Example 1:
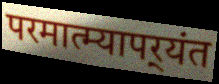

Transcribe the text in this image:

परमात्म्यापर्यंत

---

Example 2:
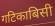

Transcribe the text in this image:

गटिकाबिसी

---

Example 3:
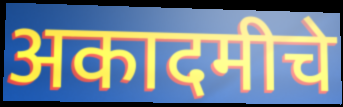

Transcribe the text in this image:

अकादमीचे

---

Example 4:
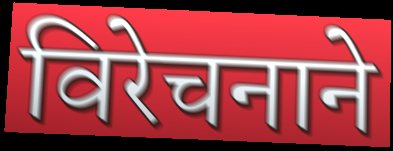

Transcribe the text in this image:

विरेचनाने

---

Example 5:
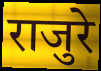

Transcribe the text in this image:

राजुरे